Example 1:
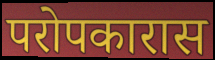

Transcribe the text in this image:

परोपकारास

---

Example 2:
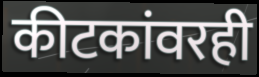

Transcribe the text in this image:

कीटकांवरही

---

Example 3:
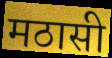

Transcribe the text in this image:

मठासी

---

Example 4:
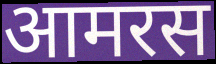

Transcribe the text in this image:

आमरस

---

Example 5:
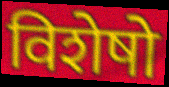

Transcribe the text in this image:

विशेषो